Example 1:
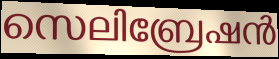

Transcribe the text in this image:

സെലിബ്രേഷൻ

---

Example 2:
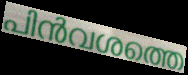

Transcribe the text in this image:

പിൻവശത്തെ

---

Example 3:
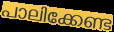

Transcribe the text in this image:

പാലിക്കേണ്ട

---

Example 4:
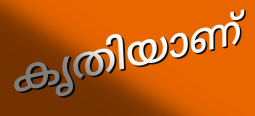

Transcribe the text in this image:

കൃതിയാണ്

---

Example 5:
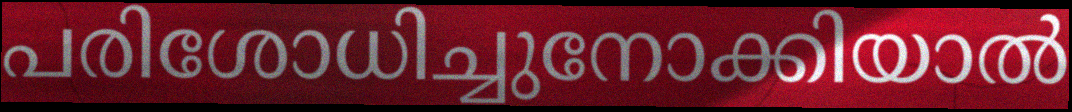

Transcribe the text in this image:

പരിശോധിച്ചുനോക്കിയാൽ